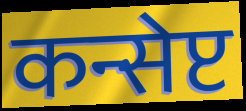
कन्सेप्ट